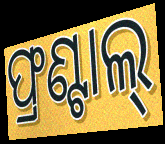
ଫ୍ରଣ୍ଟାଲ୍